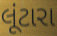
લૂંટારા